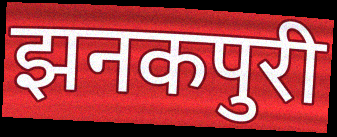
झनकपुरी